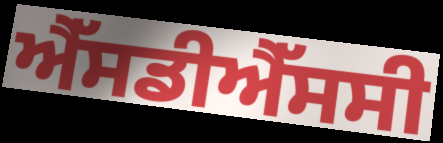
ਐੱਸਡੀਐੱਸਸੀ